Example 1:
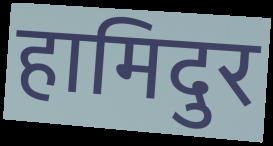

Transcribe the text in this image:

हामिदुर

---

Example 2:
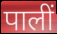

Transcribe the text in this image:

पालीं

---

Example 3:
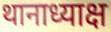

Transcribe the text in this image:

थानाध्याक्ष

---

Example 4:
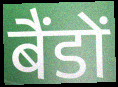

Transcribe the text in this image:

बैंडों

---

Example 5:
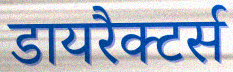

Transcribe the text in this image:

डायरैक्टर्स